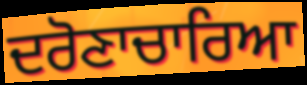
ਦਰੋਣਾਚਾਰਿਆ